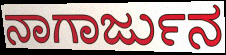
ನಾಗಾರ್ಜುನ